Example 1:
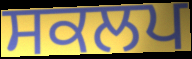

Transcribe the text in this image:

ਸਕਲਪ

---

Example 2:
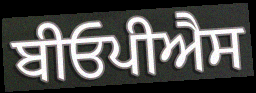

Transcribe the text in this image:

ਬੀਓਪੀਐਸ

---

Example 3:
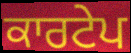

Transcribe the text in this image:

ਕਾਰਟੇਪ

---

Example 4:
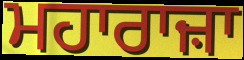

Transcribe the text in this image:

ਮਹਾਰਾਜ਼ਾ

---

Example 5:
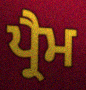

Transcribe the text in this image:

ਪ੍ਰੈਮ